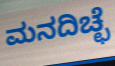
ಮನದಿಚ್ಛೆ